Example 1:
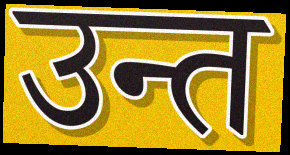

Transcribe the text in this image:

उन्त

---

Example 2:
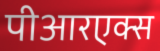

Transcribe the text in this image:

पीआरएक्स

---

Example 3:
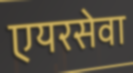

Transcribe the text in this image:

एयरसेवा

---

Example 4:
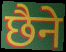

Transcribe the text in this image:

छैने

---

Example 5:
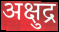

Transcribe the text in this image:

अक्षुद्र